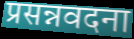
प्रसन्नवदना